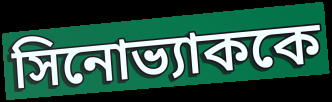
সিনোভ্যাককে